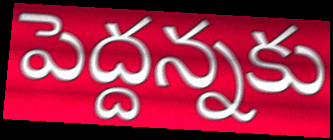
పెద్దన్నకు